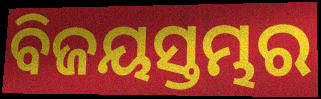
ବିଜୟସ୍ତମ୍ଭର